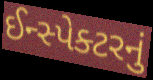
ઈન્સ્પેક્ટરનું